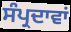
ਸੰਪ੍ਰਦਾਵਾਂ